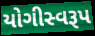
યોગીસ્વરૂપ